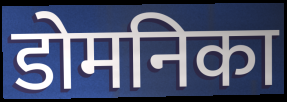
डोमनिका